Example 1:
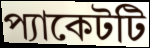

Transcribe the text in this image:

প্যাকেটটি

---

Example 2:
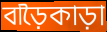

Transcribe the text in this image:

বাড়ৈকাড়া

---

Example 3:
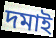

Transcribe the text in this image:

দমাই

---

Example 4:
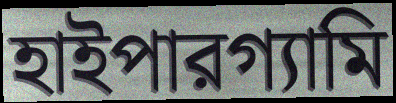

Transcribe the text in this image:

হাইপারগ্যামি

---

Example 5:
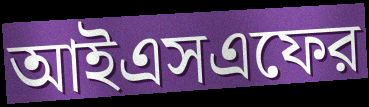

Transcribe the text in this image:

আইএসএফের